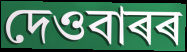
দেওবাৰৰ